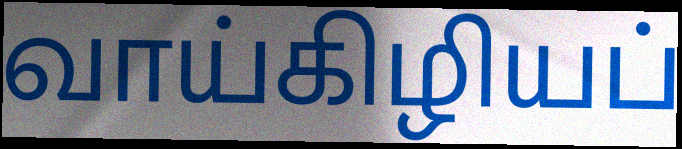
வாய்கிழியப்